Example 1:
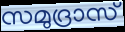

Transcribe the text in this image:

സമുദ്രാസ്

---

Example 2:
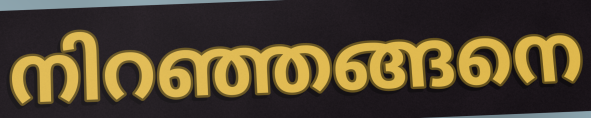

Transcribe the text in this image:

നിറഞ്ഞങ്ങനെ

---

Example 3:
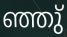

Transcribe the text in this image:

ഞ്ഞു്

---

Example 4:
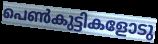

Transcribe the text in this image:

പെൺകുട്ടികളോടു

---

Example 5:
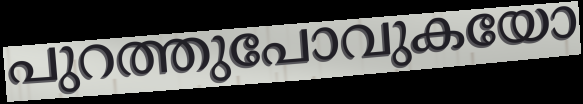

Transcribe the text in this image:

പുറത്തുപോവുകയോ